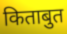
किताबुत